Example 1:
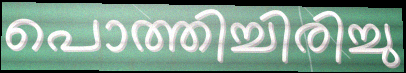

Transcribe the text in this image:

പൊത്തിച്ചിരിച്ചു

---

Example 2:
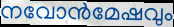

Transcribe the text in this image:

നവോൻമേഷവും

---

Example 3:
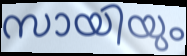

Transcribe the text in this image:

സായിയും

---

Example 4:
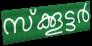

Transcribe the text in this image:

സ്ക്കൂട്ടർ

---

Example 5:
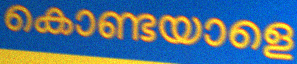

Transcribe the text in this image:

കൊണ്ടയാളെ